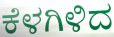
ಕೆಳಗಿಳಿದ